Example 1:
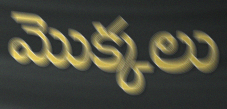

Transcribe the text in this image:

మొక్కలు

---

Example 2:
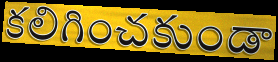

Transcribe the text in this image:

కలిగించకుండా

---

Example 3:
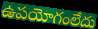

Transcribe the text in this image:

ఉపయోగంలేదు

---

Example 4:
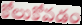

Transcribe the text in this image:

కోలుకోవడం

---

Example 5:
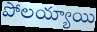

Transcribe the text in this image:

పోలయ్యాయి